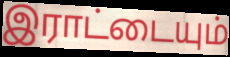
இராட்டையும்